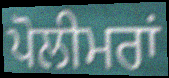
ਪੋਲੀਮਰਾਂ